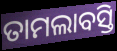
ତାମଲାବସ୍ତି